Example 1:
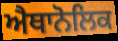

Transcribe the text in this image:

ਐਥਾਨੋਲਿਕ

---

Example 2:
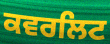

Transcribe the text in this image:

ਕਵਰਲਿਟ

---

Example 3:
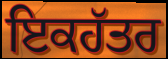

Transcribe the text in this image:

ਇਕਹੱਤਰ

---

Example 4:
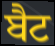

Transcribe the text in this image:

ਬੈਟ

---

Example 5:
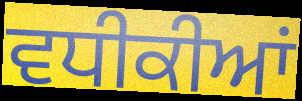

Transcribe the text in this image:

ਵਧੀਕੀਆਂ